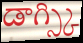
డాగ్స్కి